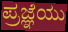
ಪ್ರಜ್ಞೆಯು